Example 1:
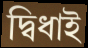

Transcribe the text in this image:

দ্বিধাই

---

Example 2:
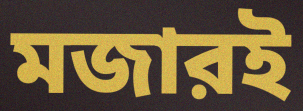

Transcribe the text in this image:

মজারই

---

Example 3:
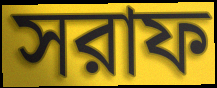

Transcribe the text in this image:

সরাফ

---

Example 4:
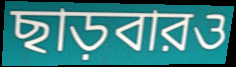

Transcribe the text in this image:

ছাড়বারও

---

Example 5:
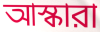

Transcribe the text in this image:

আস্কারা